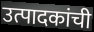
उत्पादकांची